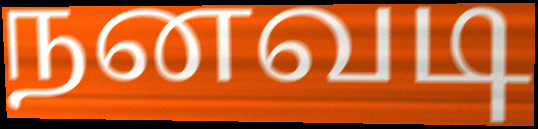
நனவடி